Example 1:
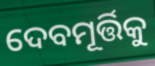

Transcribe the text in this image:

ଦେବମୂର୍ତ୍ତିକୁ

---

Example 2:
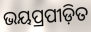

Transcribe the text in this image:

ଭୟପ୍ରପୀଡ଼ିତ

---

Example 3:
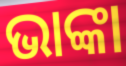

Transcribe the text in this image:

ଭାଙ୍କା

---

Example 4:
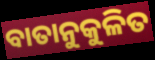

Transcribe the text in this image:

ବାତାନୁକୁଳିତ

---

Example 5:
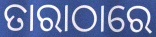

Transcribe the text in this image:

ତାରାଠାରେ